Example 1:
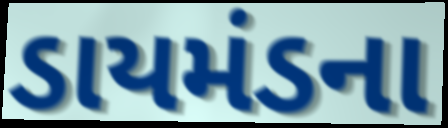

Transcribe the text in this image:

ડાયમંડના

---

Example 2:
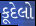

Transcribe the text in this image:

કૂદેલો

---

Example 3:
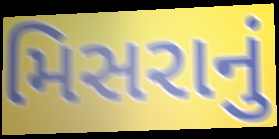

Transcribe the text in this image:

મિસરાનું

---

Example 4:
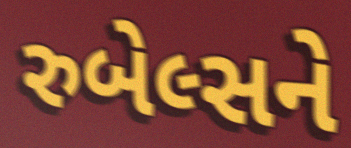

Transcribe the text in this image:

રુબેલ્સને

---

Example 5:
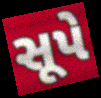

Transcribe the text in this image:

સૂપે